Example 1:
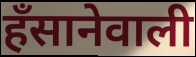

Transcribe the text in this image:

हँसानेवाली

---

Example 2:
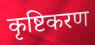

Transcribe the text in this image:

कृष्टिकरण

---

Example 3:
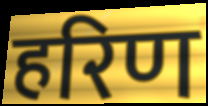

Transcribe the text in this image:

हरिण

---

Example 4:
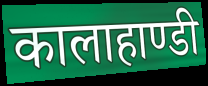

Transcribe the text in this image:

कालाहाण्डी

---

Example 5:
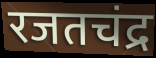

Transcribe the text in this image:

रजतचंद्र